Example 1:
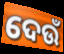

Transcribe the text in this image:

ଦେଉଁ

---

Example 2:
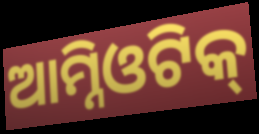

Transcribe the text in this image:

ଆମ୍ନିଓଟିକ୍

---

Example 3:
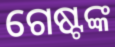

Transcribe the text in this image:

ଗେଷ୍ଟଙ୍କ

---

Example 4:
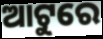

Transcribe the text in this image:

ଆଟୁରେ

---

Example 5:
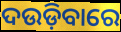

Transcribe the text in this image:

ଦଉଡ଼ିବାରେ